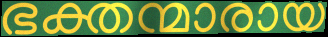
ഭക്തന്മാരായ